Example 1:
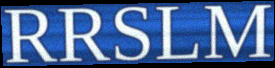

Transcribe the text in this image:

RRSLM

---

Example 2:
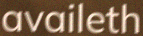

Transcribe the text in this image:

availeth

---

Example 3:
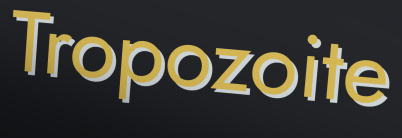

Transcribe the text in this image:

Tropozoite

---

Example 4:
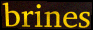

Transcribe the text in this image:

brines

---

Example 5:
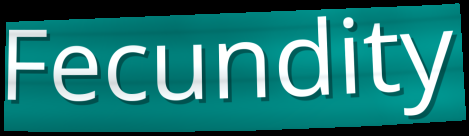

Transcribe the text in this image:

Fecundity